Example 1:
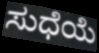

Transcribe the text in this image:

ಸುಧೆಯೆ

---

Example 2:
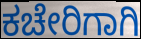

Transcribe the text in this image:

ಕಚೇರಿಗಾಗಿ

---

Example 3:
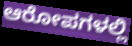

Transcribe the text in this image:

ಆರೋಪಗಳಲ್ಲಿ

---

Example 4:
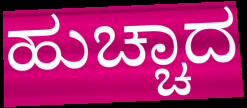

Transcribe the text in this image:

ಹುಚ್ಚಾದ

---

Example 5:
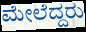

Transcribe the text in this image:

ಮೇಲೆದ್ದರು